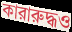
কারারুদ্ধও